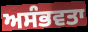
ਅਸੰਭਵਤਾ